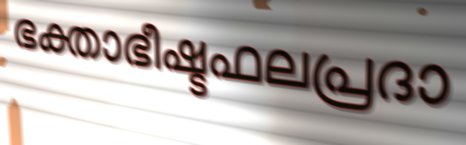
ഭക്താഭീഷ്ടഫലപ്രദാ